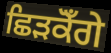
ਛਿੜਕੋਁਗੇ